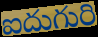
ఐదుగురి